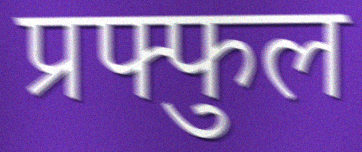
प्रफ्फुल